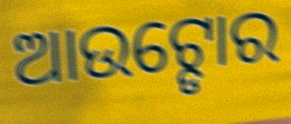
ଆଉଟ୍ଡୋର